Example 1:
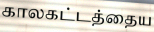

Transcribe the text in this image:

காலகட்டத்தைய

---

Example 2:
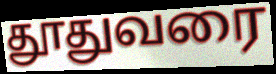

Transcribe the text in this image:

தூதுவரை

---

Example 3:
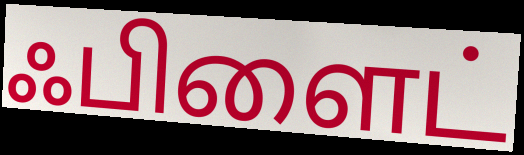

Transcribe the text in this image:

ஃபிளைட்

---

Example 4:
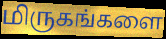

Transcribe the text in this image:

மிருகங்களை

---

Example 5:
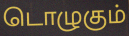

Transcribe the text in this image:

டொழுகும்